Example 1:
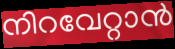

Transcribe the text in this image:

നിറവേറ്റാൻ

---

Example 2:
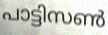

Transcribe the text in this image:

പാട്ടിസൺ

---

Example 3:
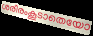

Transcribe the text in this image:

ശരീരംകൂടാതെയോ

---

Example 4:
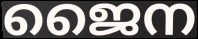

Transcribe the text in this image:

ജൈന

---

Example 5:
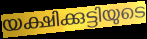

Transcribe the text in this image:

യക്ഷിക്കുട്ടിയുടെ